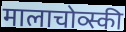
मालाचोव्स्की